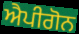
ਐਪੀਗੋਨ